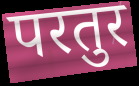
परतुर